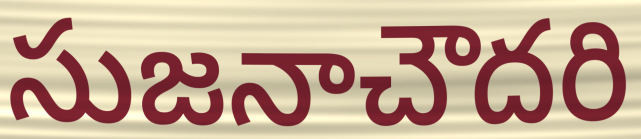
సుజనాచౌదరి